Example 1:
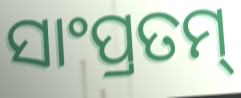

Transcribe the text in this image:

ସାଂପ୍ରତମ୍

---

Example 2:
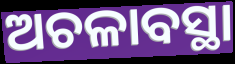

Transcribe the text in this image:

ଅଚଳାବସ୍ଥା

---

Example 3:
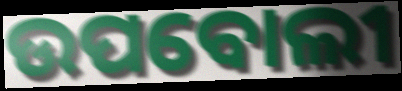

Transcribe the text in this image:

ଉପବୋଲୀ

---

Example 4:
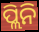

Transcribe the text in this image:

ପ୍ଲିନି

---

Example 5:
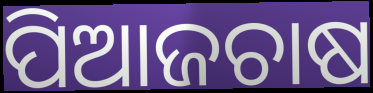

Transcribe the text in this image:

ପିଆଜଚାଷ